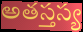
అతస్తస్య